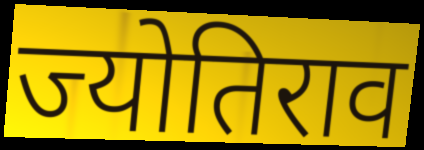
ज्योतिराव